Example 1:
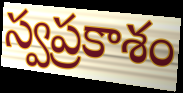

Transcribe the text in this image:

స్వప్రకాశం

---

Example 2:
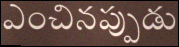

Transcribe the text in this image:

ఎంచినప్పుడు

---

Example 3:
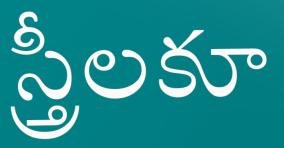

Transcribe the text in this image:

స్త్రీలకూ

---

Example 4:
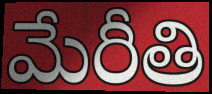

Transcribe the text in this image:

మేరీతి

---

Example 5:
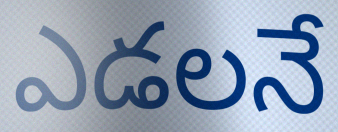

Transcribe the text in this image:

ఎడలనే